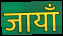
जायाँ